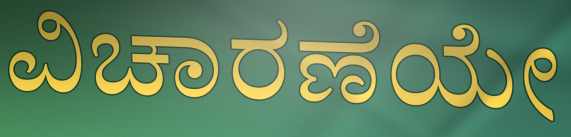
ವಿಚಾರಣೆಯೇ